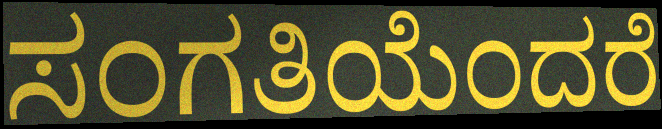
ಸಂಗತಿಯೆಂದರೆ